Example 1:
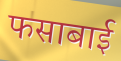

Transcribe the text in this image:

फसाबाई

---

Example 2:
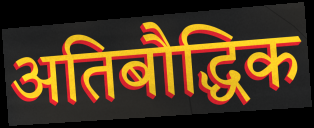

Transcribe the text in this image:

अतिबौद्धिक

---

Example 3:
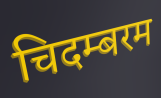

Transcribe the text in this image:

चिदम्बरम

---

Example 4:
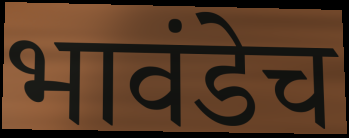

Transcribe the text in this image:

भावंडेच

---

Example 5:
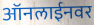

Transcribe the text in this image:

ऑनलाईनवर